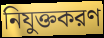
নিযুক্তকরণ